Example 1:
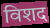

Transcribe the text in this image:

विशद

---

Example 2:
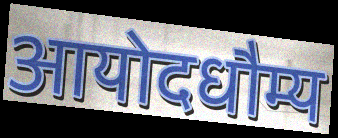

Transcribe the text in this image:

आयोदधौम्य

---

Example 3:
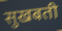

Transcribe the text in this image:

सुखबती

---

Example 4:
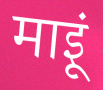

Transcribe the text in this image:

माइूं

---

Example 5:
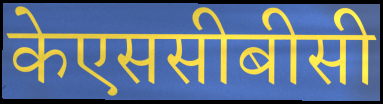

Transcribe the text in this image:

केएससीबीसी